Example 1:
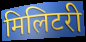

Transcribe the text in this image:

मिलिटरी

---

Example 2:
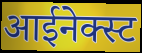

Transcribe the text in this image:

आईनेक्स्ट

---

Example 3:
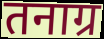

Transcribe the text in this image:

तनाग्र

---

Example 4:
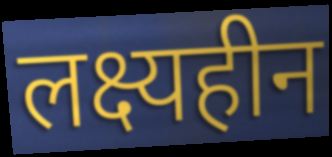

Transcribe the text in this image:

लक्ष्यहीन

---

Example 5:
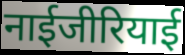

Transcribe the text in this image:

नाईजीरियाई